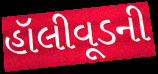
હૉલીવૂડની